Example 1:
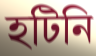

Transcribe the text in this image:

হটিনি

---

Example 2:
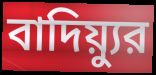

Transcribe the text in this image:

বাদিয়্যুর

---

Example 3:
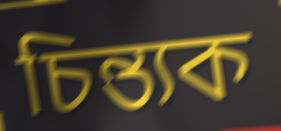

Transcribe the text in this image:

চিন্ত্যক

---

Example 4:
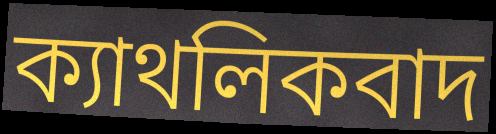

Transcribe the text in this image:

ক্যাথলিকবাদ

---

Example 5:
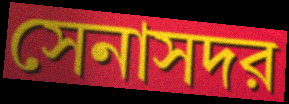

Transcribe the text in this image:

সেনাসদর